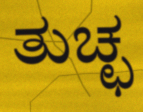
ತುಚ್ಛ